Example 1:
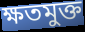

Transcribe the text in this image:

ক্ষতমুক্ত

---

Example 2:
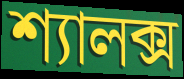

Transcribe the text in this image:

শ্যালক্স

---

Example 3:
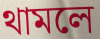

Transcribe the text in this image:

থামলে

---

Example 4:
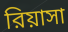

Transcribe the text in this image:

রিয়াসা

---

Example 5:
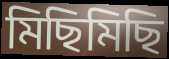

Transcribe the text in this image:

মিছিমিছি